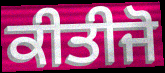
ਕੀਤੀਜੋ